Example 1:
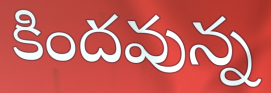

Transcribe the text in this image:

కిందవున్న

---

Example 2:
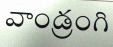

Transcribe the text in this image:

వాండ్రంగి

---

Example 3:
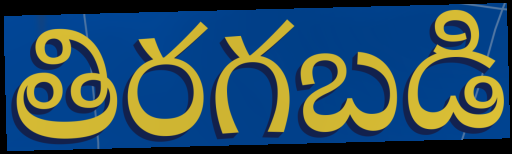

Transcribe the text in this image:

తిరగబడి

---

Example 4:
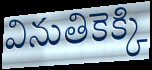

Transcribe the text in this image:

వినుతికెక్కి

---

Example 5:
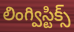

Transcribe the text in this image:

లింగ్విస్టిక్స్